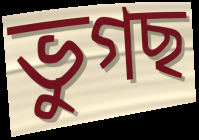
ভুগছ